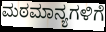
ಮಠಮಾನ್ಯಗಳಿಗೆ